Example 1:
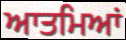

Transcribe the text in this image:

ਆਤਮਿਆਂ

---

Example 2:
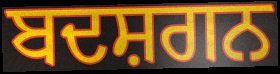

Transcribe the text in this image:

ਬਦਸ਼ਗਨ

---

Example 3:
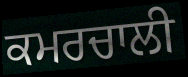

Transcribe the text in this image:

ਕਮਰਚਾਲੀ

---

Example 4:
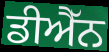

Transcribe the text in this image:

ਡੀਐੱਨ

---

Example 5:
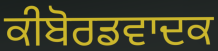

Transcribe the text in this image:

ਕੀਬੋਰਡਵਾਦਕ